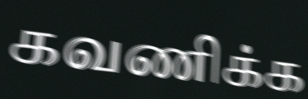
கவணிக்க